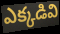
ఎక్కడివి